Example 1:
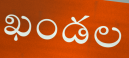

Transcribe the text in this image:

ఖండల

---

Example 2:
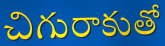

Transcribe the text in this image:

చిగురాకుతో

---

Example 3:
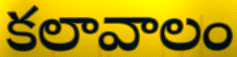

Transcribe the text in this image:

కలావాలం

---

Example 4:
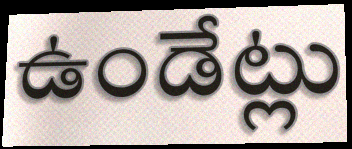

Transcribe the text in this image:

ఉండేట్లు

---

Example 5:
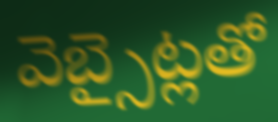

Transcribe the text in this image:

వెబ్సైట్లతో